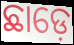
ଛାଡ଼େ